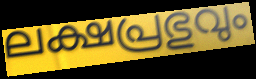
ലക്ഷപ്രഭുവും